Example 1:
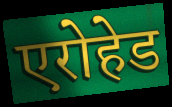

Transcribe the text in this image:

एरोहेड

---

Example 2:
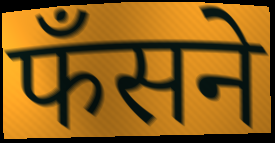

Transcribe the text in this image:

फँसने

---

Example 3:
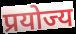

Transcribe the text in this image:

प्रयोज्य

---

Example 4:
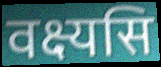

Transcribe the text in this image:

वक्ष्यसि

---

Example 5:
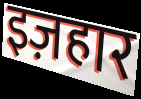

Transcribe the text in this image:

इज़हार